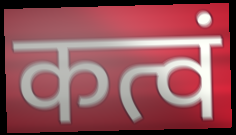
कत्वं